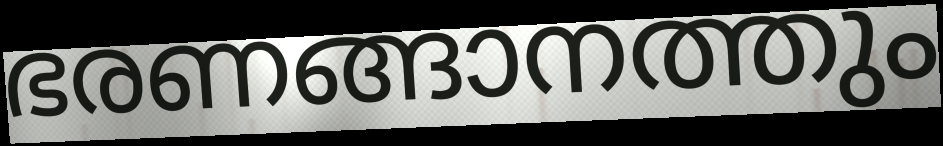
ഭരണങ്ങാനത്തും